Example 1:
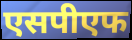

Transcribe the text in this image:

एसपीएफ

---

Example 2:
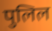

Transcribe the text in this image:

पुलिल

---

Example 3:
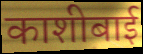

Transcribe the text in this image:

काशीबाई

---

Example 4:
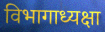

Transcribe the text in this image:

विभागाध्यक्षा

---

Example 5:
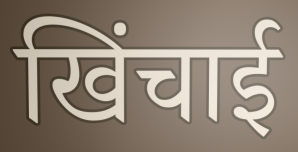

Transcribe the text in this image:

खिंचाई